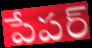
పేపర్